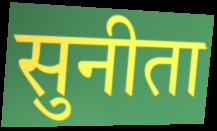
सुनीता